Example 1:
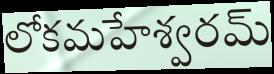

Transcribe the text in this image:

లోకమహేశ్వరమ్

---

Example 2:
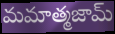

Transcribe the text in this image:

మమాత్మజామ్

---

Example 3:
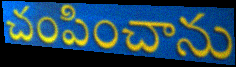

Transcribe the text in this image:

చంపించాను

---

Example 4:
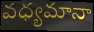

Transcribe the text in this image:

వధ్యమానా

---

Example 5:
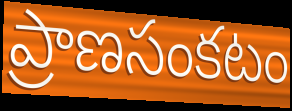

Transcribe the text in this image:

ప్రాణసంకటం